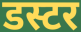
डस्टर